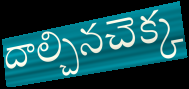
దాల్చినచెక్క